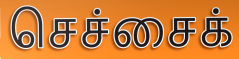
செச்சைக்